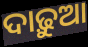
ଦାଢ଼ୁଆ